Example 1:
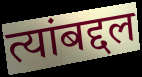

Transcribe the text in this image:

त्यांबद्दल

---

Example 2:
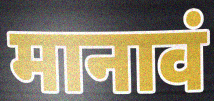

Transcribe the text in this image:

मानावं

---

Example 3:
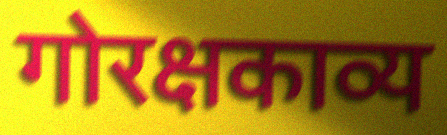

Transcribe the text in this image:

गोरक्षकाव्य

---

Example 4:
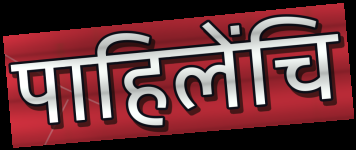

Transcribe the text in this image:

पाहिलेंचि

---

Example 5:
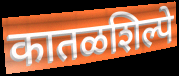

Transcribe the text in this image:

कातळशिल्पे